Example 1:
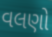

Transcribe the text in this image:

વલણો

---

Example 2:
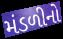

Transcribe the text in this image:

મંડળીનો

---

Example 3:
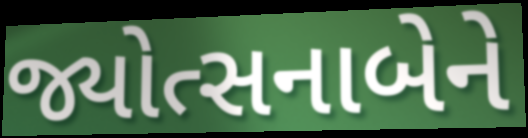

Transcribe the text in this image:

જ્યોત્સનાબેને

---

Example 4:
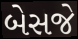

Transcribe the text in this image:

બેસજે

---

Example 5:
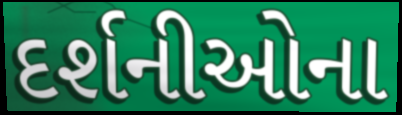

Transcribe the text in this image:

દર્શનીઓના